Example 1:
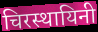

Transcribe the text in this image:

चिरस्थायिनी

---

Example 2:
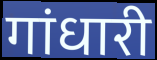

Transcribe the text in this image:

गांधारी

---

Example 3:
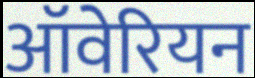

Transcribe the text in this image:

ऑवेरियन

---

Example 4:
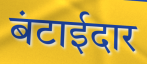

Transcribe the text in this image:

बंटाईदार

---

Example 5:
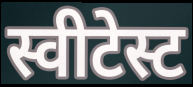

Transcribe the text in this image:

स्वीटेस्ट